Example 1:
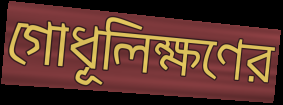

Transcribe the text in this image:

গোধূলিক্ষণের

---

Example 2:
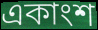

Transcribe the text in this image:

একাংশ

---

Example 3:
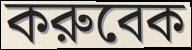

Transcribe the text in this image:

করুবেক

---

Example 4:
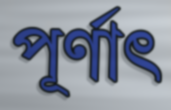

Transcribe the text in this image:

পূর্ণাৎ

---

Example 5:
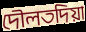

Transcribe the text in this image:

দৌলতদিয়া